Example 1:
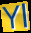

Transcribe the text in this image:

Yl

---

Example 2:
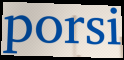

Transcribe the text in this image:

porsi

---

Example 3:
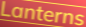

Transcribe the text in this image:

Lanterns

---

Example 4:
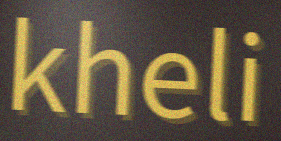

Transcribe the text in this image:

kheli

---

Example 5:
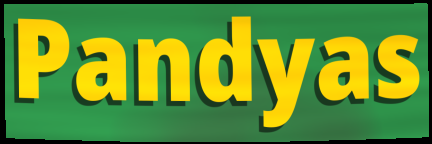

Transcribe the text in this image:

Pandyas